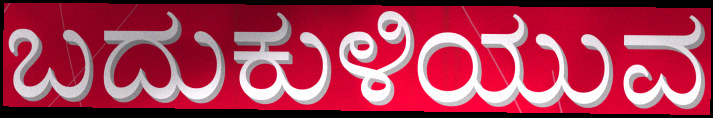
ಬದುಕುಳಿಯುವ